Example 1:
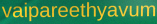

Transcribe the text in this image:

vaipareethyavum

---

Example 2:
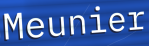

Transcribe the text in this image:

Meunier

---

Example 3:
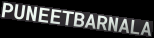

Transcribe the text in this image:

PUNEETBARNALA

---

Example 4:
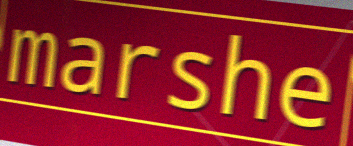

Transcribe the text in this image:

marshe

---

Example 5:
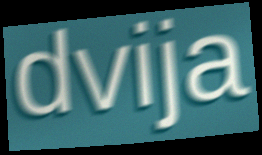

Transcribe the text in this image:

dvija